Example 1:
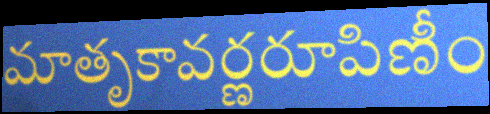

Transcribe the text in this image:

మాతృకావర్ణరూపిణీం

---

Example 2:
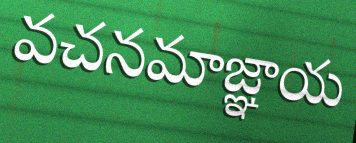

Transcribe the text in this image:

వచనమాజ్ఞాయ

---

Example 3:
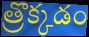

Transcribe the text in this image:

త్రొక్కడం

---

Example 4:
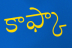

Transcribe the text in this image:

కాఫ్కా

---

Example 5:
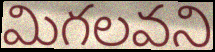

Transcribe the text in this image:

మిగలవని